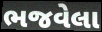
ભજવેલા